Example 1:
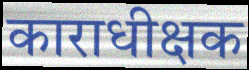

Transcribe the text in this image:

काराधीक्षक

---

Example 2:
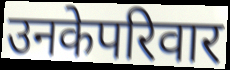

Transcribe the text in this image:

उनकेपरिवार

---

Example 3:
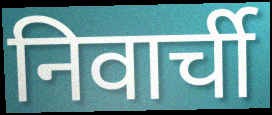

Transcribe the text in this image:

निवार्ची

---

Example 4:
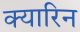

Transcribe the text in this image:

क्यारिन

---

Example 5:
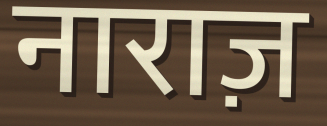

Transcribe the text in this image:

नाराज़